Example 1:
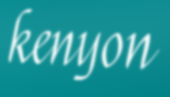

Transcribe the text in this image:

kenyon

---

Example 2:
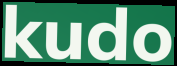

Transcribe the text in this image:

kudo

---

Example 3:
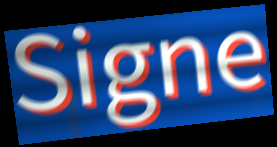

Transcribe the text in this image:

Signe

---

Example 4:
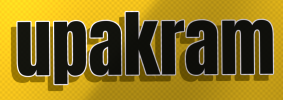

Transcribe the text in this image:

upakram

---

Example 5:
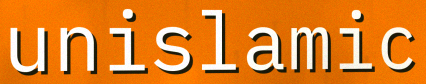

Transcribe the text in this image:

unislamic